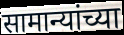
सामान्यांच्या